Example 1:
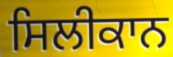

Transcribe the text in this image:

ਸਿਲੀਕਾਨ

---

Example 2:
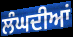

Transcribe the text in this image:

ਲੰਘਦੀਆਂ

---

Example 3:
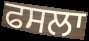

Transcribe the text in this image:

ਫਸਲਾ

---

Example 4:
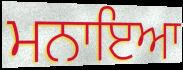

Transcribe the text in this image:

ਮਨਾਇਆ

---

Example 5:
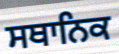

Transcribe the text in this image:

ਸਥਾਨਿਕ